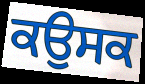
ਕਉਸਕ